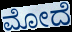
ಮೋದೆ